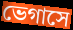
ভেগাসে